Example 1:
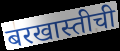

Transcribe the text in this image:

बरखास्तीची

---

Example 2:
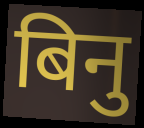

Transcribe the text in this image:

बिनु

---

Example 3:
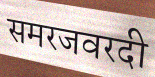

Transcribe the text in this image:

समरजवरदी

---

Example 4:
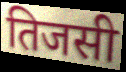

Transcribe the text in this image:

तिजसी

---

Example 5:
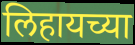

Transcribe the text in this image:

लिहायच्या